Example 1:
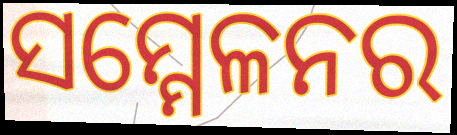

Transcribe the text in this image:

ସମ୍ମେଳନର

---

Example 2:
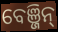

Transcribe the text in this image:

ବେଞ୍ଜିନ୍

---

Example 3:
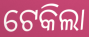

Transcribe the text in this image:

ଟେକିଲା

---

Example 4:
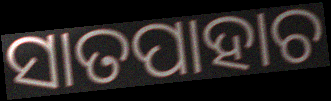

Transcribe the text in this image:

ସାତପାହାଚ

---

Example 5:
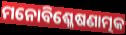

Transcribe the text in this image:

ମନୋବିଶ୍ଳେଷଣାତ୍ମକ